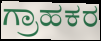
ಗ್ರಾಹಕರ